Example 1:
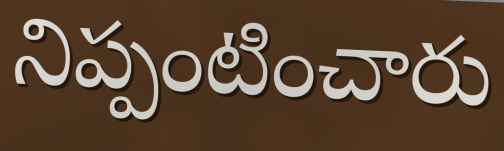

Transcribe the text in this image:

నిప్పంటించారు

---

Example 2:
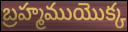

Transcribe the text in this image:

బ్రహ్మముయొక్క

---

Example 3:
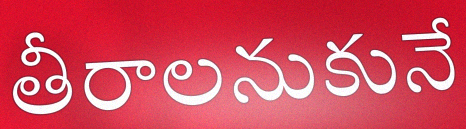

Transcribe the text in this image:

తీరాలనుకునే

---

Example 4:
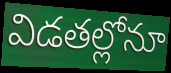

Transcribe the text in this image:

విడతల్లోనూ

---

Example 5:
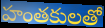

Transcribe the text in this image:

హంతకులతో